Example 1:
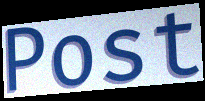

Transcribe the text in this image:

Post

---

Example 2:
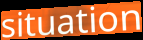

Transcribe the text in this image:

situation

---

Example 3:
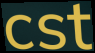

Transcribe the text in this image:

cst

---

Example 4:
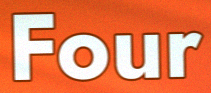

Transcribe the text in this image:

Four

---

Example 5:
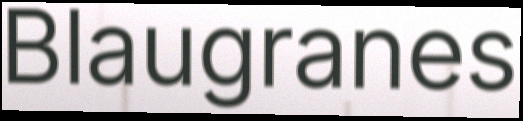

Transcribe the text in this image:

Blaugranes